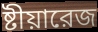
ষ্টীয়ারেজ